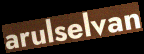
arulselvan